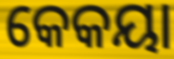
କେକୟା